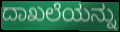
ದಾಖಲೆಯನ್ನು